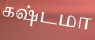
கஷ்டமா